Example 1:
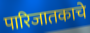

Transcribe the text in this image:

पारिजातकाचे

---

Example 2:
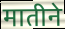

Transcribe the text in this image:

मातीने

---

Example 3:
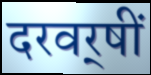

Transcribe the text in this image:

दरवर्षीं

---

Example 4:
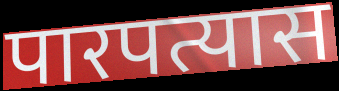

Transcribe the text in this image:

पारपत्यास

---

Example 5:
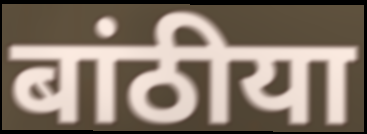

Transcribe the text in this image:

बांठीया